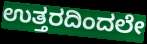
ಉತ್ತರದಿಂದಲೇ